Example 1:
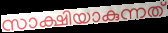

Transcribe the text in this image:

സാക്ഷിയാകുന്നത്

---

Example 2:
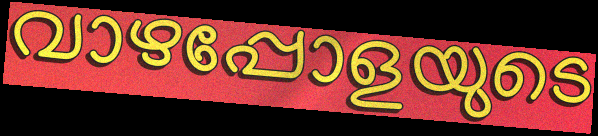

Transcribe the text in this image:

വാഴപ്പോളയുടെ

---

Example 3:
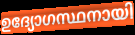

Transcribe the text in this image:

ഉദ്യോഗസ്ഥനായി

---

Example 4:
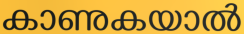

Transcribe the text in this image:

കാണുകയാൽ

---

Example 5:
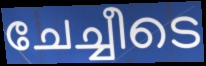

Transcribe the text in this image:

ചേച്ചീടെ